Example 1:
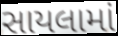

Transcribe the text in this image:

સાયલામાં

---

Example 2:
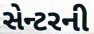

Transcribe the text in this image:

સેન્ટરની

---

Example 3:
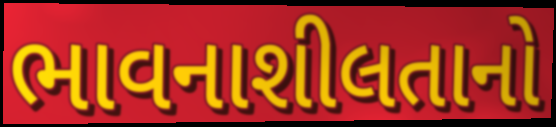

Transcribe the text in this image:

ભાવનાશીલતાનો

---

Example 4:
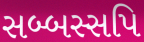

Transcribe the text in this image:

સબ્બસ્સપિ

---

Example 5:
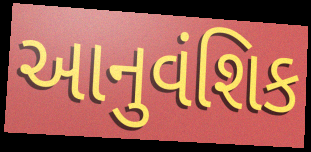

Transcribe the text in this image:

આનુવંશિક